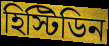
হিস্টিডিন